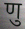
णु